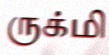
ருக்மி